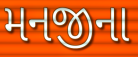
મનજીના